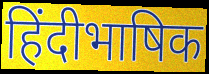
हिंदीभाषिक